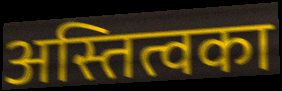
अस्तित्वका